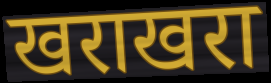
खराखरा